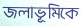
জলাভূমিকে